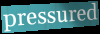
pressured